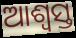
ଆଶ୍ୱସ୍ତ